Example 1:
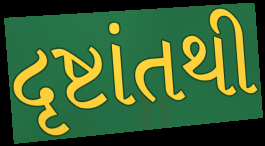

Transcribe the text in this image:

દૃષ્ટાંતથી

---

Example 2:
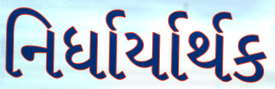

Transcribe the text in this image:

નિર્ધાર્યાર્થક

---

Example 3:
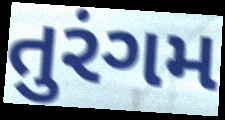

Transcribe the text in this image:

તુરંગમ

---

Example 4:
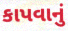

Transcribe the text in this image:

કાપવાનું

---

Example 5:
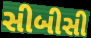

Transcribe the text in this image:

સીબીસી